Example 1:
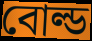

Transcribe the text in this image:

বোল্ড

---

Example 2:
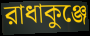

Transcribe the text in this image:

রাধাকুঞ্জে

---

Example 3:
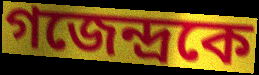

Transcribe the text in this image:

গজেন্দ্রকে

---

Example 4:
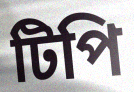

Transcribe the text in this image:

টিপি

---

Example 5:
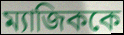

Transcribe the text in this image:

ম্যাজিককে